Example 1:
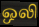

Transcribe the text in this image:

ஒலி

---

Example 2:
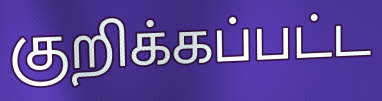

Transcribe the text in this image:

குறிக்கப்பட்ட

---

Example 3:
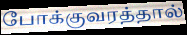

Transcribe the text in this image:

போக்குவரத்தால்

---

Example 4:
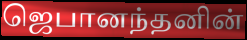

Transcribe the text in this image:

ஜெபானந்தனின்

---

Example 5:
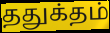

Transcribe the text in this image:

ததுக்தம்